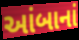
આંબાનાં